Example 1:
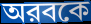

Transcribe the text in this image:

অরবকে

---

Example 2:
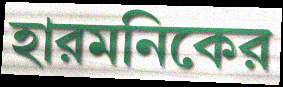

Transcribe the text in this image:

হারমনিকের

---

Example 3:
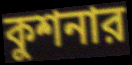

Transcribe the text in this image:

কুশনার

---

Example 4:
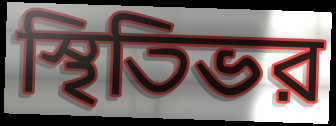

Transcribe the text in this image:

স্থিতিভর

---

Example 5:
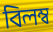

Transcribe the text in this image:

বিলম্ব